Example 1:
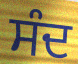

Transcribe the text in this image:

ਸੰਦ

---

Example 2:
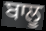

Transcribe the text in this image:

ਬਾਲੂ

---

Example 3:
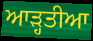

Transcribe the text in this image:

ਆੜ੍ਹਤੀਆ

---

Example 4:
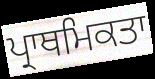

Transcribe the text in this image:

ਪ੍ਰਾਥਮਿਕਤਾ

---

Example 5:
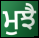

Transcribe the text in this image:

ਮੁਝੈ